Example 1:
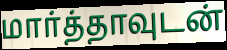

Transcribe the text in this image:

மார்த்தாவுடன்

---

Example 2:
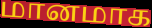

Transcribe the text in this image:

மானமாக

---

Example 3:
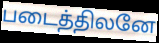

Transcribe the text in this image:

படைத்திலனே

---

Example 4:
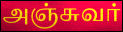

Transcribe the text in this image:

அஞ்சுவர்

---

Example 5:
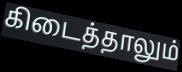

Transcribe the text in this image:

கிடைத்தாலும்